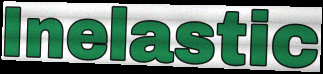
Inelastic